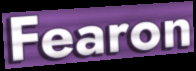
Fearon